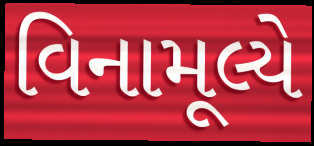
વિનામૂલ્યે